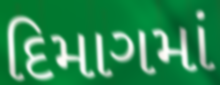
દિમાગમાં